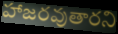
హాజరవుతారని